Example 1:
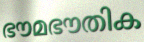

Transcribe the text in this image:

ഭൗമഭൗതിക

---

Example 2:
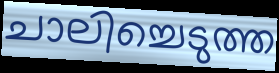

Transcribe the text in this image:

ചാലിച്ചെടുത്ത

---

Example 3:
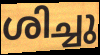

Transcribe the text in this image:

ശിച്ചു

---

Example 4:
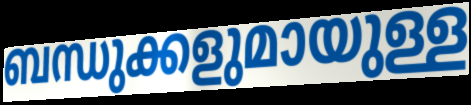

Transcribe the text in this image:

ബന്ധുക്കളുമായുള്ള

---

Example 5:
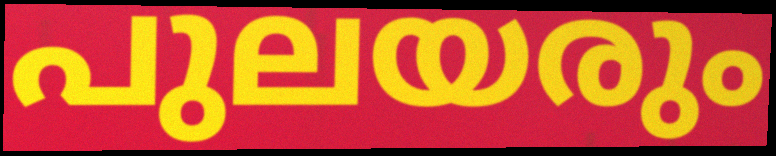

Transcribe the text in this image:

പുലയരും